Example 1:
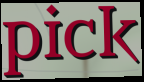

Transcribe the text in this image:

pick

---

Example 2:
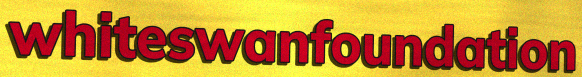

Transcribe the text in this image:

whiteswanfoundation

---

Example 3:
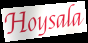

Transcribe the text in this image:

Hoysala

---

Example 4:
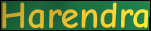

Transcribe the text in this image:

Harendra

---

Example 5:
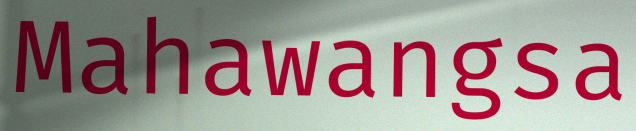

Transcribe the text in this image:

Mahawangsa